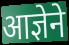
आज्ञेने